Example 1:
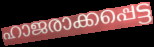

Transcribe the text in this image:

ഹാജരാക്കപ്പെട്ട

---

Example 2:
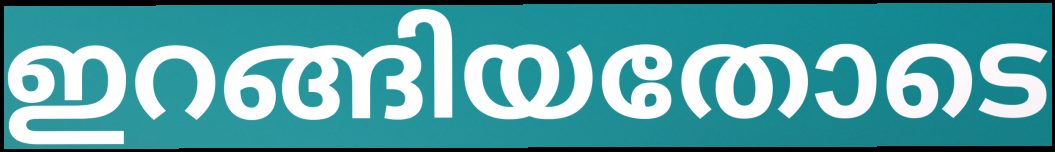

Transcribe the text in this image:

ഇറങ്ങിയതോടെ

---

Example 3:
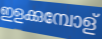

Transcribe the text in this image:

ഇളക്കുമ്പോള്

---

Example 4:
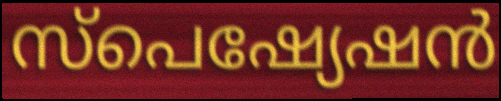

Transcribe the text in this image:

സ്പെഷ്യേഷൻ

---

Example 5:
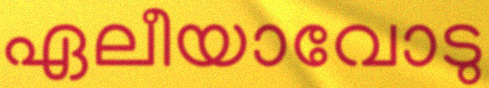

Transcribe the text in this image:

ഏലീയാവോടു